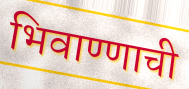
भिवाण्णाची